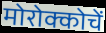
मोरोक्कोचें